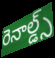
రెనాల్డ్స్